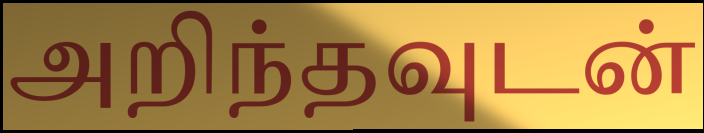
அறிந்தவுடன்